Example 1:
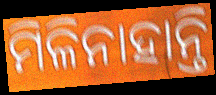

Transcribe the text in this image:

ମିଳିନାହାନ୍ତି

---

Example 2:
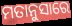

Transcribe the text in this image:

ମତାନୁସାରେ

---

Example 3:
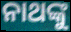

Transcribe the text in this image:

ନାଥଙ୍କୁ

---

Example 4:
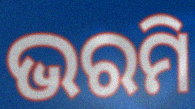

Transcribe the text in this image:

ଭରମି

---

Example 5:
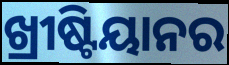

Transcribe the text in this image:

ଖ୍ରୀଷ୍ଟିୟାନର